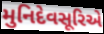
મુનિદેવસૂરિએ